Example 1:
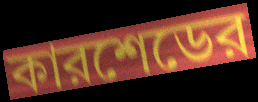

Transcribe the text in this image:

কারশেডের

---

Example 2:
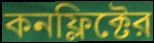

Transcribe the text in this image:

কনফ্লিক্টের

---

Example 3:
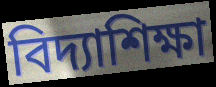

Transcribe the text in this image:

বিদ্যাশিক্ষা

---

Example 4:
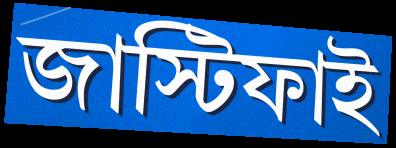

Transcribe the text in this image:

জাস্টিফাই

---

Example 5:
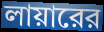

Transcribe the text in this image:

লায়ারের